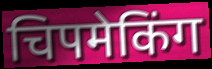
चिपमेकिंग